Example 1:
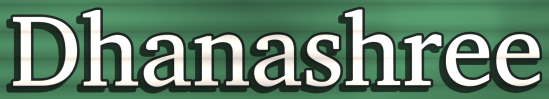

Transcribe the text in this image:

Dhanashree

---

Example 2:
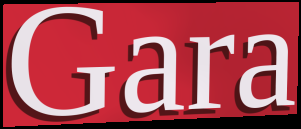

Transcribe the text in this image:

Gara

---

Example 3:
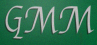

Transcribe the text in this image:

GMM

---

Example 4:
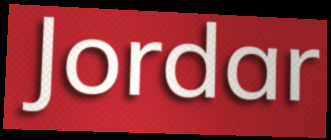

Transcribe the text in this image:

Jordar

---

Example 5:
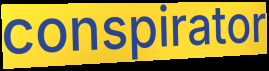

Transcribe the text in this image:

conspirator